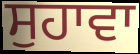
ਸੁਹਾਵਾ